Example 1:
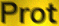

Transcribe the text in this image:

Prot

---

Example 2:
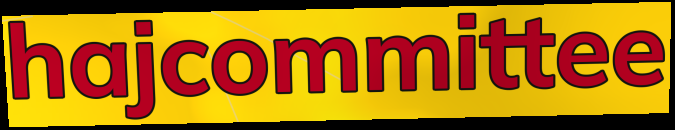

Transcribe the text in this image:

hajcommittee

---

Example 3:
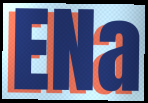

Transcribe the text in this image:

ENa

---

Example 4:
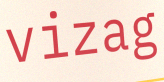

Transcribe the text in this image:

vizag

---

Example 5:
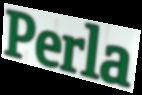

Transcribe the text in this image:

Perla